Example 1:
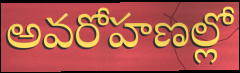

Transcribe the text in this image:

అవరోహణల్లో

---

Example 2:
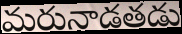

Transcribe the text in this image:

మరునాడతడు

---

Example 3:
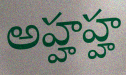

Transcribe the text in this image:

అహ్హహ్హ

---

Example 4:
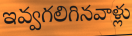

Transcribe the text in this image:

ఇవ్వగలిగినవాళ్లు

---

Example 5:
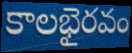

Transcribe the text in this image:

కాలభైరవం